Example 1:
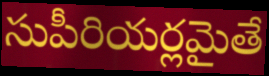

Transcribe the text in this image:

సుపీరియర్లమైతే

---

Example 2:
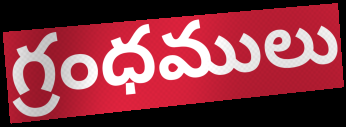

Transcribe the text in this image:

గ్రంధములు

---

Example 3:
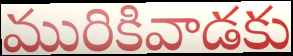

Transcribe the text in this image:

మురికివాడకు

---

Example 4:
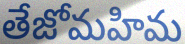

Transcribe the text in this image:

తేజోమహిమ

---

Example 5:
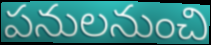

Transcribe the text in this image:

పనులనుంచి